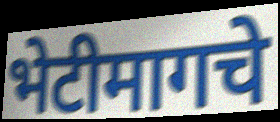
भेटीमागचे